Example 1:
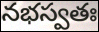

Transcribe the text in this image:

నభస్వతః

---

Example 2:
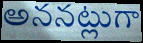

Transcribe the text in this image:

అననట్లుగా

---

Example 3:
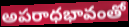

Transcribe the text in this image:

అపరాధభావంతో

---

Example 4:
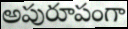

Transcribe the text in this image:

అపురూపంగా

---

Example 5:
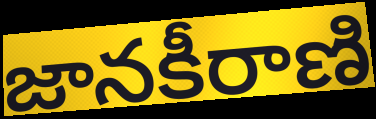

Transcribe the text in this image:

జానకీరాణి